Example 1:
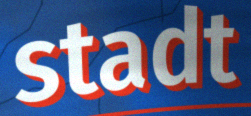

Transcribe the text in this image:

stadt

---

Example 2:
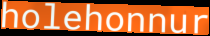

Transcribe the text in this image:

holehonnur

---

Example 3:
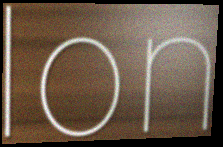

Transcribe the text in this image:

Ion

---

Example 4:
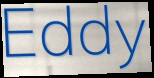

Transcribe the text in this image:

Eddy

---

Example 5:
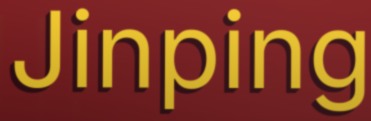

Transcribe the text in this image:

Jinping